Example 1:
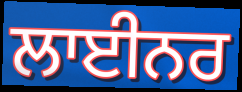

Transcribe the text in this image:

ਲਾਈਨਰ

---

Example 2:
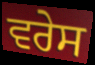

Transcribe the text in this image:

ਵਰੇਸ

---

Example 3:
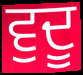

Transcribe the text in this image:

ਵੁਦੂ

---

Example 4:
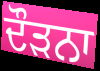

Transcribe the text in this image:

ਦੌੜਨਾ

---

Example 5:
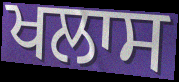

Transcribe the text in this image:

ਖਲਾਸ